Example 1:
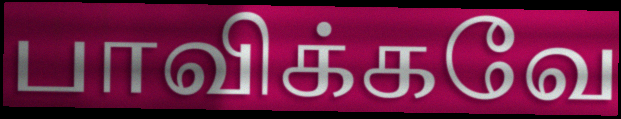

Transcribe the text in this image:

பாவிக்கவே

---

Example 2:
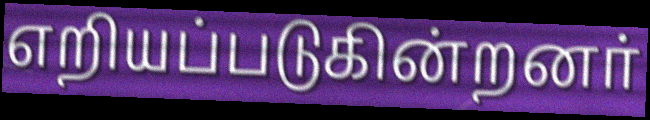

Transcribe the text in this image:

எறியப்படுகின்றனர்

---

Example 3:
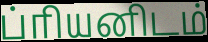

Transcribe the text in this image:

ப்ரியனிடம்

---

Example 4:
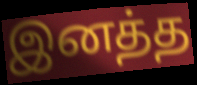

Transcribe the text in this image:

இனத்த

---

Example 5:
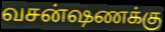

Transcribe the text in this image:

வசன்ஷணக்கு